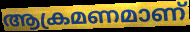
ആക്രമണമാണ്